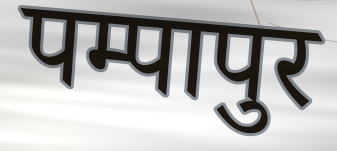
पम्पापुर